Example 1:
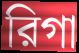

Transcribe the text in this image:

রিগা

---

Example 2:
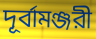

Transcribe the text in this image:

দূর্বামঞ্জরী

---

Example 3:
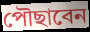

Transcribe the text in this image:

পৌছাবেন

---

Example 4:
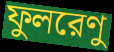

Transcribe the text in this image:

ফুলরেণু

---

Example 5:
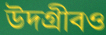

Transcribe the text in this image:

উদগ্রীবও